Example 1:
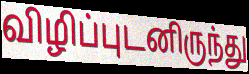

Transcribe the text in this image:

விழிப்புடனிருந்து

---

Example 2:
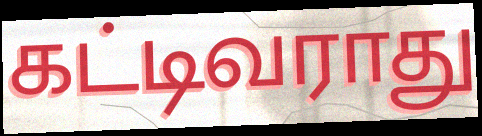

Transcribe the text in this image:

கட்டிவராது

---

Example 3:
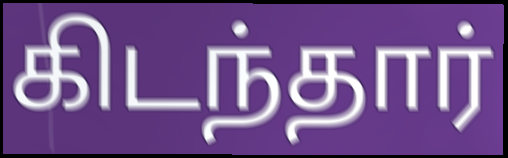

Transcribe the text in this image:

கிடந்தார்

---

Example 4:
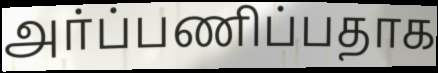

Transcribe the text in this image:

அர்ப்பணிப்பதாக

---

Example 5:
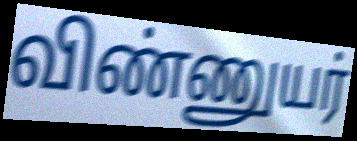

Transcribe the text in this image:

விண்ணுயர்